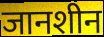
जानशीन